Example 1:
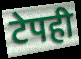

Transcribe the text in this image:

टेपही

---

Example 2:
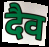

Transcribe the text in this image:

दैव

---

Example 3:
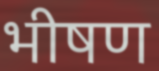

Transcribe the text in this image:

भीषण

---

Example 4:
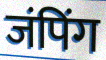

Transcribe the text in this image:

जंपिंग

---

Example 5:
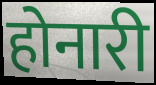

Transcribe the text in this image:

होनारी